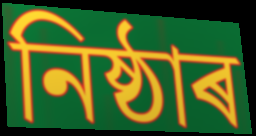
নিষ্ঠাৰ